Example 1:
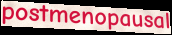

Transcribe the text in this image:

postmenopausal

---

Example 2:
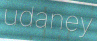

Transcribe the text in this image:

udaney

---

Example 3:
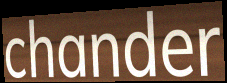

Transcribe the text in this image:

chander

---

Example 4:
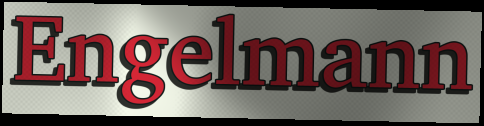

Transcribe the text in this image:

Engelmann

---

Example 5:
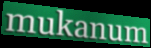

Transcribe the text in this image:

mukanum